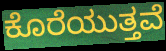
ಕೊರೆಯುತ್ತವೆ